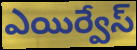
ఎయిర్వేస్